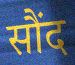
सौंद